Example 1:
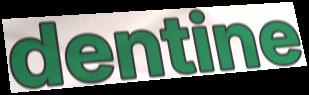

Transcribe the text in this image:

dentine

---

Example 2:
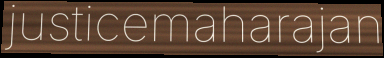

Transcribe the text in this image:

justicemaharajan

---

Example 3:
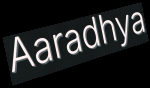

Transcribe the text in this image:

Aaradhya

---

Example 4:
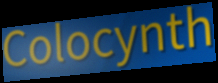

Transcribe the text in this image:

Colocynth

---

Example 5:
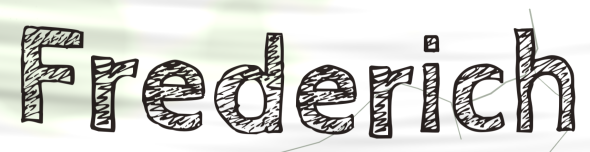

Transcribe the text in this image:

Frederich